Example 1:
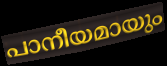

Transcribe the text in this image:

പാനീയമായും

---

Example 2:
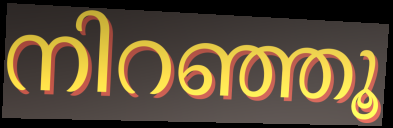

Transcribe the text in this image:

നിറഞ്ഞൂ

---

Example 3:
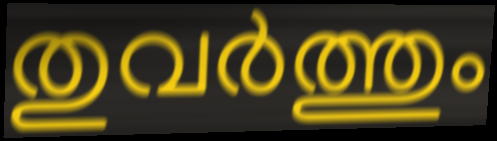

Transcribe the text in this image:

തുവർത്തും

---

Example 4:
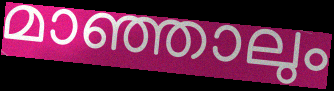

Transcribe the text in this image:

മാഞ്ഞാലും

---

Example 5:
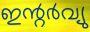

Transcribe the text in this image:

ഇന്റർവ്യു